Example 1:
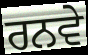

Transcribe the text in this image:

ਰਨਵੇ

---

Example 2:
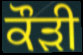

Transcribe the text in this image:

ਕੌੜੀ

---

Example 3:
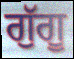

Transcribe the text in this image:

ਗੁੱਗੂ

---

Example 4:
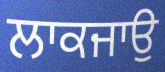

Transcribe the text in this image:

ਲਾਕਜਾਉ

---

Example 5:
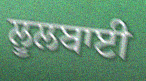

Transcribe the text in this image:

ਲੂਲਬਾਈ